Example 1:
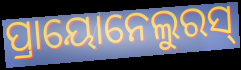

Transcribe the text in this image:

ପ୍ରାୟୋନେଲୁରସ୍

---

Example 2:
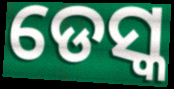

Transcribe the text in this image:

ଡେସ୍କ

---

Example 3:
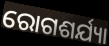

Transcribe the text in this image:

ରୋଗଶର୍ଯ୍ୟା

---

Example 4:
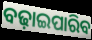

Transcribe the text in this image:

ବଢ଼ାଇପାରିବ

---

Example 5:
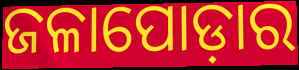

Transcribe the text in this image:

ଜଳାପୋଡ଼ାର